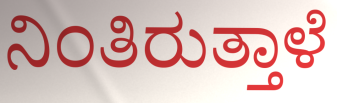
ನಿಂತಿರುತ್ತಾಳೆ